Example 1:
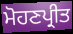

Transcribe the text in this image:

ਮੋਹਣਪ੍ਰੀਤ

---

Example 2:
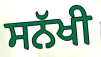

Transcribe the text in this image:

ਸਨੱਖੀ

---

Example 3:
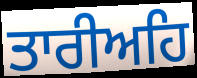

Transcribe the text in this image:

ਤਾਰੀਅਹਿ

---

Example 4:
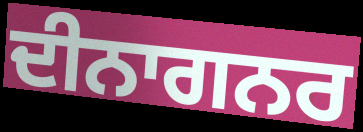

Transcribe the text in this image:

ਦੀਨਾਗਨਰ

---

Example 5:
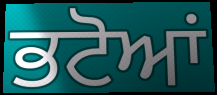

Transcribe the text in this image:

ਭਟੋਆਂ